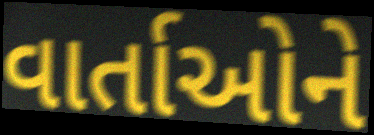
વાર્તાઓને